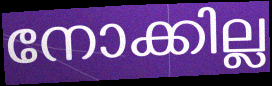
നോക്കില്ല